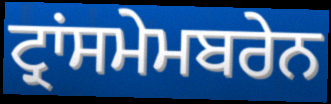
ਟ੍ਰਾਂਸਮੇਮਬਰੇਨ